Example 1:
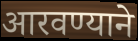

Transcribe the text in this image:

आरवण्याने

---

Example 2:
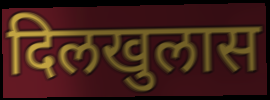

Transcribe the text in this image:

दिलखुलास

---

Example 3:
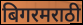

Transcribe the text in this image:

बिगरमराठी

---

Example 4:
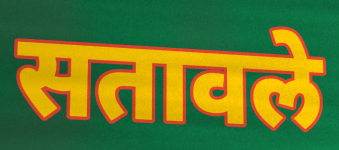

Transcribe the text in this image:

सतावले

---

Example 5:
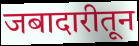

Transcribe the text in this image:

जबादारीतून